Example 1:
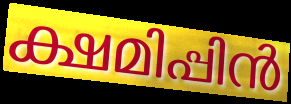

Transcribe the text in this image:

ക്ഷമിപ്പിൻ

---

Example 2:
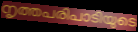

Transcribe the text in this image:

നൃത്തപരിപാടിയുടെ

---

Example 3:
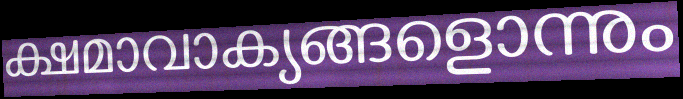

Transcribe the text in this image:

ക്ഷമാവാക്യങ്ങളൊന്നും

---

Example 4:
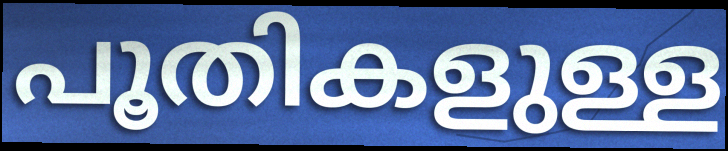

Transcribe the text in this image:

പൂതികളുള്ള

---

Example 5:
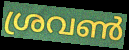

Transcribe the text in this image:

ശ്രവൺ